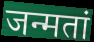
जन्मतां